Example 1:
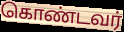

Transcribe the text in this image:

கொண்டவர்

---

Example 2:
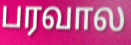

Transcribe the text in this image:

பரவால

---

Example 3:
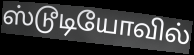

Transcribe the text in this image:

ஸ்டூடியோவில்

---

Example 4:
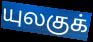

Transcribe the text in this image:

யுலகுக்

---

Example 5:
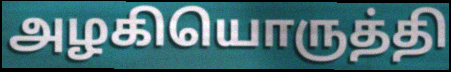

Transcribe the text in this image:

அழகியொருத்தி